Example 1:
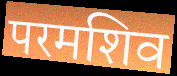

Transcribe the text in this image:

परमशिव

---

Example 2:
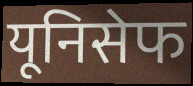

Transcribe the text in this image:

यूनिसेफ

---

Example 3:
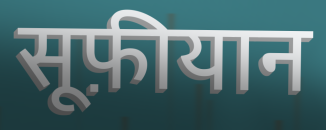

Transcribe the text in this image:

सूफ़ीयान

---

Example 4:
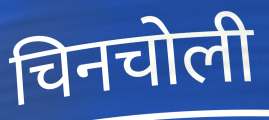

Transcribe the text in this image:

चिनचोली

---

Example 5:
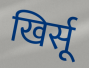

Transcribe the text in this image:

खिर्सू